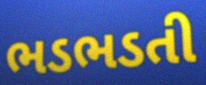
ભડભડતી